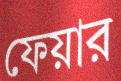
ফেয়ার